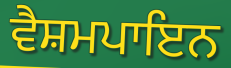
ਵੈਸ਼ਮਪਾਇਨ